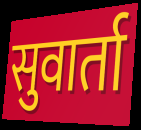
सुवार्ता